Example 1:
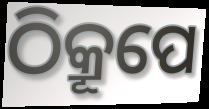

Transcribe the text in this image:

ଠିକ୍ରୂପେ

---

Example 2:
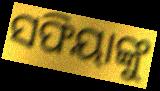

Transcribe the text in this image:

ସଫିୟାଙ୍କୁ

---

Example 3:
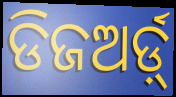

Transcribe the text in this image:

ଡିଜଅର୍ଡ଼୍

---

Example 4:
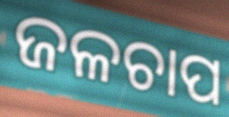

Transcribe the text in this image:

ଜଳଚାପ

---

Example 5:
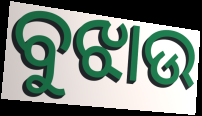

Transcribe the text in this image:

ବୁଝାଉ